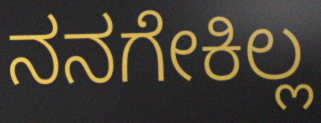
ನನಗೇಕಿಲ್ಲ